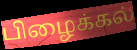
பிழைக்கல்